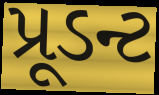
પ્રૂડન્ટ